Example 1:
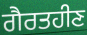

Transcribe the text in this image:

ਗੈਰਤਹੀਣ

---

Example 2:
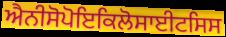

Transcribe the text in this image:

ਐਨੀਸੋਪੋਇਕਿਲੋਸਾਈਟਸਿਸ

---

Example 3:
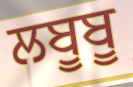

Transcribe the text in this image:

ਲਬੂਬੂ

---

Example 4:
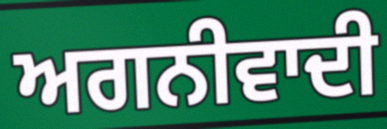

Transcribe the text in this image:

ਅਗਨੀਵਾਦੀ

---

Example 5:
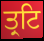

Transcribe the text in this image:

ਤ੍ਰਟਿ